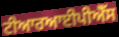
ਟੀਆਰਆਈਪੀਐੱਸ